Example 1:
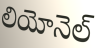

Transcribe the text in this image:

లియోనెల్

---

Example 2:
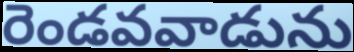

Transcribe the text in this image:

రెండవవాడును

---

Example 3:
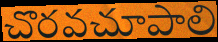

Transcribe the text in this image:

చొరవచూపాలి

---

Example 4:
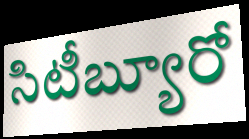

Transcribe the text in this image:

సిటీబ్యూరో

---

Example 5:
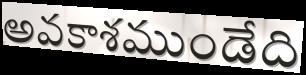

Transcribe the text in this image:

అవకాశముండేది